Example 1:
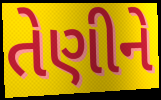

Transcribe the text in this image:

તેણીને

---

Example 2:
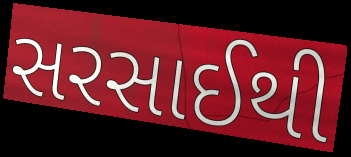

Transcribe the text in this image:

સરસાઈથી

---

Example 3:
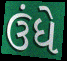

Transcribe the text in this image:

ઉંધે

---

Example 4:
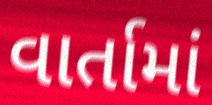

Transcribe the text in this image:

વાર્તામાં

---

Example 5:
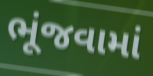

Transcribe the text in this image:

ભૂંજવામાં